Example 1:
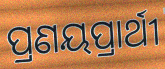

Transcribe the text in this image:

ପ୍ରଣୟପ୍ରାର୍ଥୀ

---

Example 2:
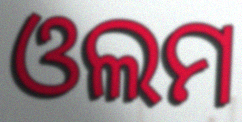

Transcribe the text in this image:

ଓଲମ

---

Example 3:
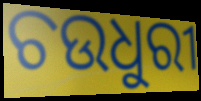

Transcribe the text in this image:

ଚଉଧୁରୀ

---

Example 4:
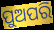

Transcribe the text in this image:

ପୁଅପରି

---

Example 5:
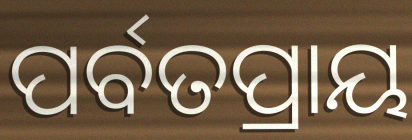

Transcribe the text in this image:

ପର୍ବତପ୍ରାୟ